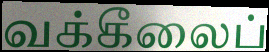
வக்கீலைப்